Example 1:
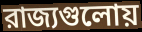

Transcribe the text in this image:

রাজ্যগুলোয়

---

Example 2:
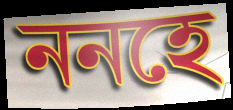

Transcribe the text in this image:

ননহে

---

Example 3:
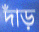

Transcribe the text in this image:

দাঁড়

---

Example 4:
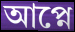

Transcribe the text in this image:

আপ্নে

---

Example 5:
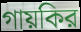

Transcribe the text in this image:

গায়কির